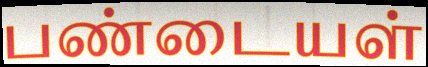
பண்டையள்